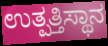
ಉತ್ಪತ್ತಿಸ್ಥಾನ